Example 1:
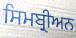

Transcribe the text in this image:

ਸਿਮਬ੍ਰੀਅਨ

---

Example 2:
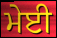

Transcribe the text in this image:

ਮੇਈ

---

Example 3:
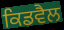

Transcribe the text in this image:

ਕਿਡਵੈਲ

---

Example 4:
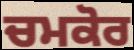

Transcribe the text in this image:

ਚਮਕੋਰ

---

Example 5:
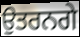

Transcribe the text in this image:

ਉਤਰਨਗੇ